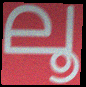
ലൂ